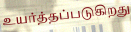
உயர்த்தப்படுகிறது